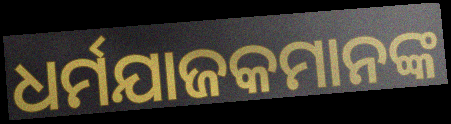
ଧର୍ମଯାଜକମାନଙ୍କ